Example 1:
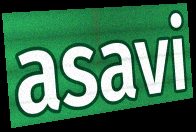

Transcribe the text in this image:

asavi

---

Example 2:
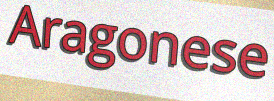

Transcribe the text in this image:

Aragonese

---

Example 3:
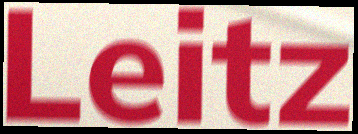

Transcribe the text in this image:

Leitz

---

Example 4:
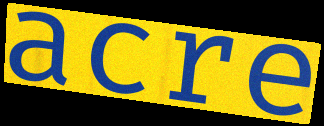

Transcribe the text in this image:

acre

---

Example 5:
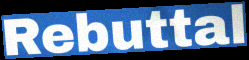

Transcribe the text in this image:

Rebuttal